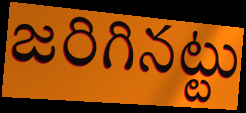
జరిగినట్టు